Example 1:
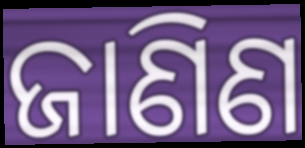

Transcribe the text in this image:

ଜାଣିଣ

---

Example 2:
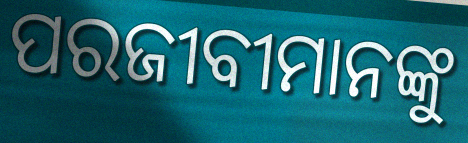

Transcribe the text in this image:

ପରଜୀବୀମାନଙ୍କୁ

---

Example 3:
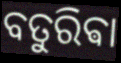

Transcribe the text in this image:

ବତୁରିଵା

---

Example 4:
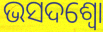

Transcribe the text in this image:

ଭସଦଶ୍ଵୋ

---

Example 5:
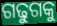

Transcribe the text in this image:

ଗଢୁଗକୁ